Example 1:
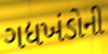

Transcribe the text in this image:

ગદ્યખંડોની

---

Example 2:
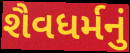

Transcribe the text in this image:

શૈવધર્મનું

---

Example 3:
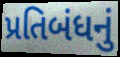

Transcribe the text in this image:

પ્રતિબંધનું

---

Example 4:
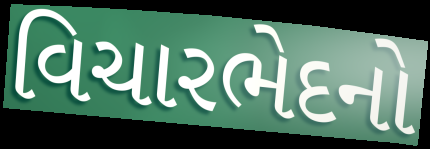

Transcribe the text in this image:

વિચારભેદનો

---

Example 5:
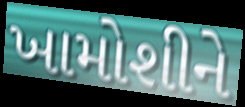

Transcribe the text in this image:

ખામોશીને